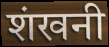
शंखनी